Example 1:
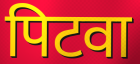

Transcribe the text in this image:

पिटवा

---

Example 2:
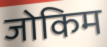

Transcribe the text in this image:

जोकिम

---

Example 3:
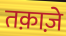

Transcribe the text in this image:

तक़ाज़े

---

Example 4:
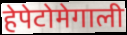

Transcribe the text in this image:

हेपेटोमेगाली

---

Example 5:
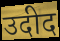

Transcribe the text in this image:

उदीद